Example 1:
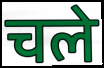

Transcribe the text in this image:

चले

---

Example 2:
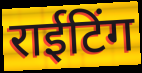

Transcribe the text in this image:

राईटिंग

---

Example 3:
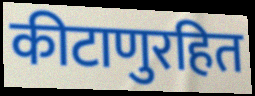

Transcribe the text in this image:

कीटाणुरहित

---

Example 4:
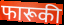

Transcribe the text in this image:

फारूकी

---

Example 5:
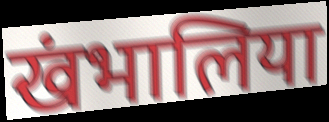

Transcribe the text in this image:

खंभालिया